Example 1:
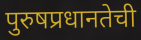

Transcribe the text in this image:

पुरुषप्रधानतेची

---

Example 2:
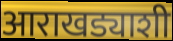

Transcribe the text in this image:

आराखड्याशी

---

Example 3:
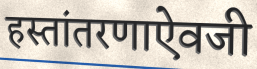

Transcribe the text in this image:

हस्तांतरणाऐवजी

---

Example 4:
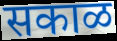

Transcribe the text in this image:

सकाळ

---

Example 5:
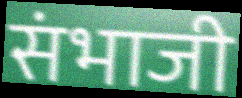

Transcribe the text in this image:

संभाजी